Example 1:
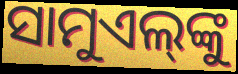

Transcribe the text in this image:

ସାମୁଏଲ୍‌ଙ୍କୁ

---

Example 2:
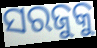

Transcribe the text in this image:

ସରଜୁକୁ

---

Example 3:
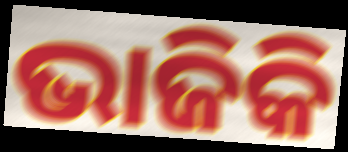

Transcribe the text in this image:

ଭାଜିକି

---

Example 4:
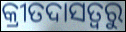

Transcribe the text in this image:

କ୍ରୀତଦାସତ୍ୱରୁ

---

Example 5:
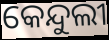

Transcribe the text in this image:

କେନ୍ଦୁଲୀ